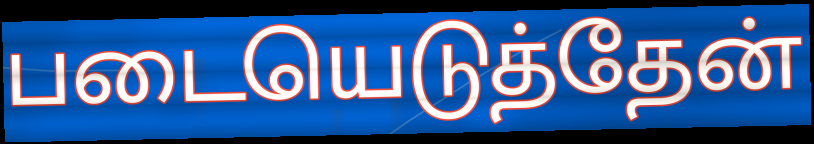
படையெடுத்தேன்